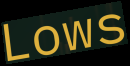
Lows